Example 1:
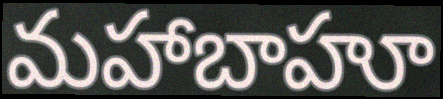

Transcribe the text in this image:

మహాబాహూ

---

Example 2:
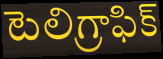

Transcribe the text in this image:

టెలిగ్రాఫిక్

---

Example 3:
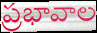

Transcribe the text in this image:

ప్రభావాల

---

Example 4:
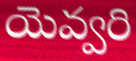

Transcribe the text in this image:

యెవ్వరి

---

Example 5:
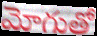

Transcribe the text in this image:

మోగుతో